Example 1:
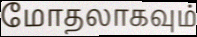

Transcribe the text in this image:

மோதலாகவும்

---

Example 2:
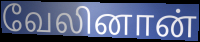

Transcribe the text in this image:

வேலினான்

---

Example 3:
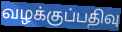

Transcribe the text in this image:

வழக்குப்பதிவு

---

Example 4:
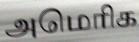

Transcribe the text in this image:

அமெரிக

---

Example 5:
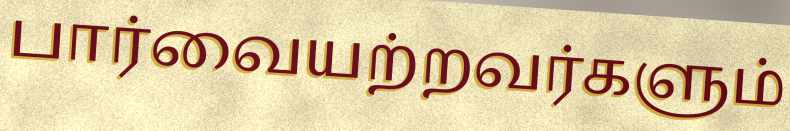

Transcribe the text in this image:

பார்வையற்றவர்களும்